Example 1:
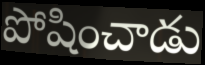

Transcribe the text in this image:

పోషించాడు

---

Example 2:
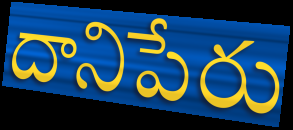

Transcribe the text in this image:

దానిపేరు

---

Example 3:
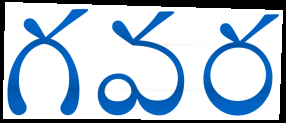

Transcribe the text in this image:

గవర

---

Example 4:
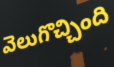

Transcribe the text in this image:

వెలుగొచ్చింది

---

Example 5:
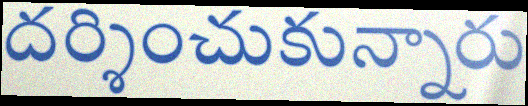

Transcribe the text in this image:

దర్శించుకున్నారు